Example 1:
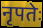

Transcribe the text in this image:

नृपतेः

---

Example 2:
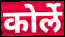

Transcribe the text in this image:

कोर्ले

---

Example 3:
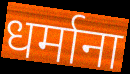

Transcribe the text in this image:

धर्माना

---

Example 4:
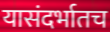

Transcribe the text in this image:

यासंदर्भातच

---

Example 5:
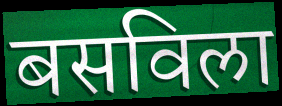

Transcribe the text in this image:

बसविला